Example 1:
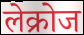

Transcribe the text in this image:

लेक्रोज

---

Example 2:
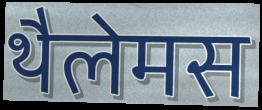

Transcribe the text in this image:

थैलेमस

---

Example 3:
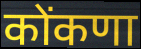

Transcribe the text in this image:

कोंकणा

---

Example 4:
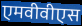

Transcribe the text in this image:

एमवीवीएस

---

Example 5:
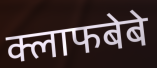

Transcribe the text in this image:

क्लाफबेबे